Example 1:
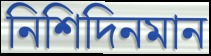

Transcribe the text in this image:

নিশিদিনমান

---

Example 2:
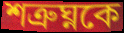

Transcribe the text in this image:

শত্রুঘ্নকে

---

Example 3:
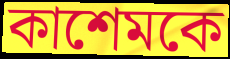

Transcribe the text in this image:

কাশেমকে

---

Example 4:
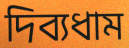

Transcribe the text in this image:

দিব্যধাম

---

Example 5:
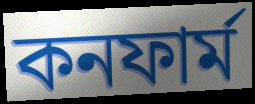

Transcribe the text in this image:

কনফার্ম